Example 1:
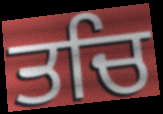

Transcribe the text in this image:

ਤਚਿ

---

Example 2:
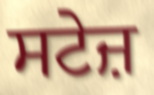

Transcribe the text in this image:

ਸਟੇਜ਼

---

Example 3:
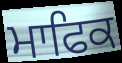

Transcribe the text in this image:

ਮਾਫਿਕ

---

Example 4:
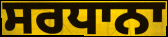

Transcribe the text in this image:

ਸਰਧਾਨਾ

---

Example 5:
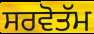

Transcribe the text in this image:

ਸਰਵੋਤੱਮ